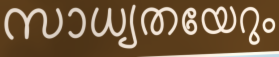
സാധ്യതയേറും